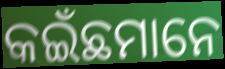
କଇଁଛମାନେ